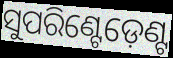
ସୁପରିଣ୍ଟେଡ଼େଣ୍ଟ